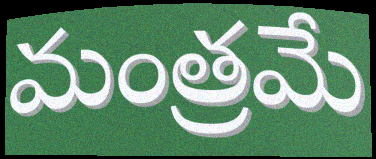
మంత్రమే